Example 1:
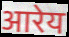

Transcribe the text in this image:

आरेय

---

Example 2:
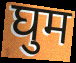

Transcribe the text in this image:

घुम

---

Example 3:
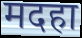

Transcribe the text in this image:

मदहा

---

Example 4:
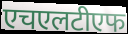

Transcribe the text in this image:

एचएलटीएफ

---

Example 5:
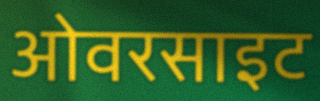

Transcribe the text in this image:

ओवरसाइट